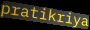
pratikriya